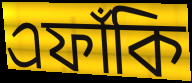
এফাঁকি